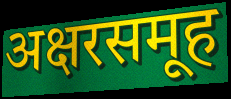
अक्षरसमूह